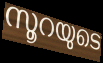
സൂറയുടെ